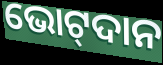
ଭୋଟ୍‌ଦାନ